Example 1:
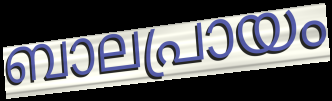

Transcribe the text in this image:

ബാലപ്രായം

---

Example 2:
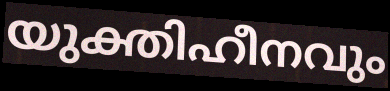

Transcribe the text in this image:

യുക്തിഹീനവും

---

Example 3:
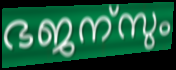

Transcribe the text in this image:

ഭജന്സും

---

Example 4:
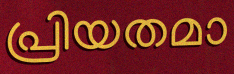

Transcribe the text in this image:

പ്രിയതമാ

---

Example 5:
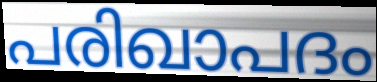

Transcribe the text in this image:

പരിഖാപദം